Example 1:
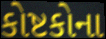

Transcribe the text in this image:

કોષ્ટકોના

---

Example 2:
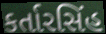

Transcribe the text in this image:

કર્તારસિંહ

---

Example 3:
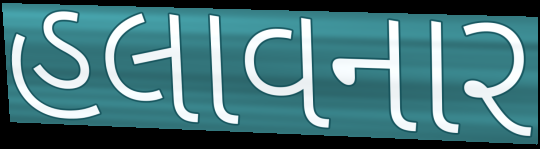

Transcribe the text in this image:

હલાવનાર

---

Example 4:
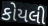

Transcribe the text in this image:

કોયલી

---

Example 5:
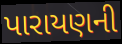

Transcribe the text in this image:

પારાયણની